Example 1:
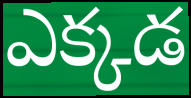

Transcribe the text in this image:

ఎక్కడ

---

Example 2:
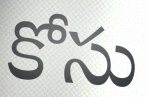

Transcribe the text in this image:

కోసు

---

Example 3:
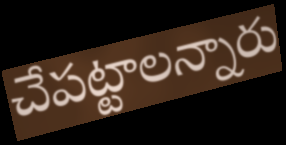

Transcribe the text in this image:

చేపట్టాలన్నారు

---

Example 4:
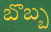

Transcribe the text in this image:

బొబ్బ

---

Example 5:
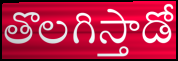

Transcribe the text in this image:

తొలగిస్తాడో